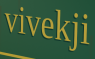
vivekji